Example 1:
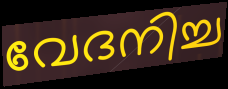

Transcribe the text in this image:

വേദനിച്ച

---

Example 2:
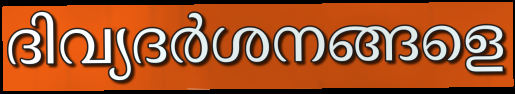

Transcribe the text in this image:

ദിവ്യദർശനങ്ങളെ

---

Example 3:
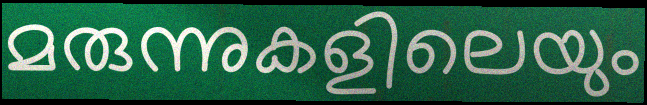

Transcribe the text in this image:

മരുന്നുകളിലെയും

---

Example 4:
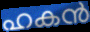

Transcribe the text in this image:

ഹകൻ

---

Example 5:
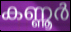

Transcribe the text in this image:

കണ്ണൂർ